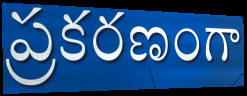
ప్రకరణంగా